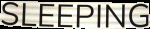
SLEEPING